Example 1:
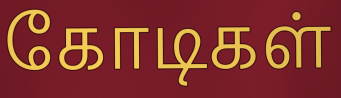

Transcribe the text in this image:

கோடிகள்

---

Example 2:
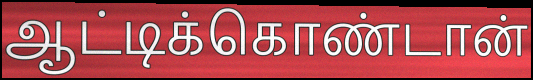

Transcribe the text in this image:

ஆட்டிக்கொண்டான்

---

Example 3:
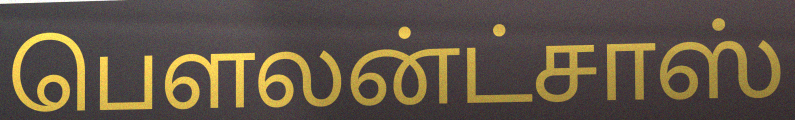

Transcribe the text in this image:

பௌலன்ட்சாஸ்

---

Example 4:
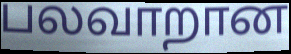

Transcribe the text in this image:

பலவாறான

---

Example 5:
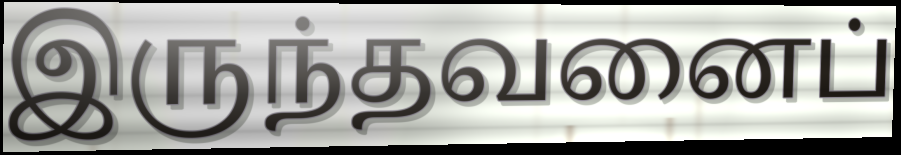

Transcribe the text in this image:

இருந்தவனைப்